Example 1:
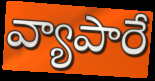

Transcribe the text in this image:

వ్యాపారే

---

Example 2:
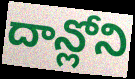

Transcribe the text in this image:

దాన్లోని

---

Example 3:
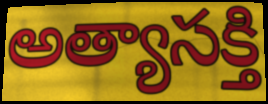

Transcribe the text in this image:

అత్యాసక్తి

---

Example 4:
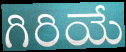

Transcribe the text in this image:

గిరియే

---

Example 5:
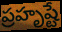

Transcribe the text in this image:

ప్రహృష్టే